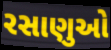
રસાણુઓ